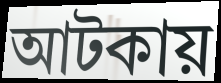
আটকায়